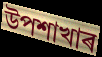
উপশাখাৰ